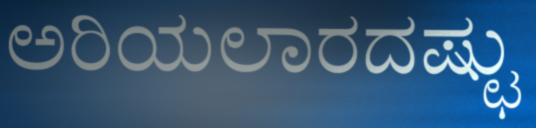
ಅರಿಯಲಾರದಷ್ಟು